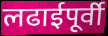
लढाईपूर्वी